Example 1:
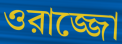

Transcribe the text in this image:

ওরাজ্জো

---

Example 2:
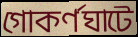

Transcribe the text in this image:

গোকর্ণঘাটে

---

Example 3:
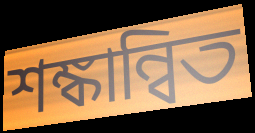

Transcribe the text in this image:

শঙ্কান্বিত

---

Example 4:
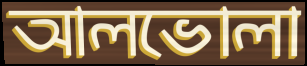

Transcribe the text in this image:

আলভোলা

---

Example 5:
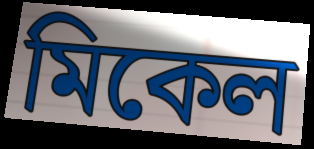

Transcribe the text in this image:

মিকেল